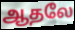
ஆதலே